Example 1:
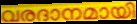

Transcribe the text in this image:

വരദാനമായി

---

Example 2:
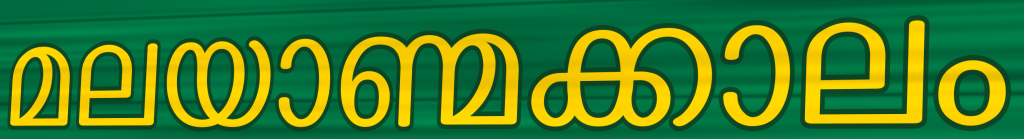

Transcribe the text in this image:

മലയാണ്മക്കാലം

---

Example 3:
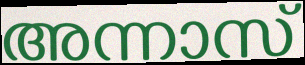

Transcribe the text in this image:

അന്നാസ്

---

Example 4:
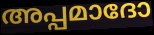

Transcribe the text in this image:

അപ്പമാദോ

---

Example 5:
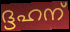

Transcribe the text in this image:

ദ്ദഹന്